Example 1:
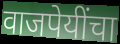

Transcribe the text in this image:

वाजपेयींचा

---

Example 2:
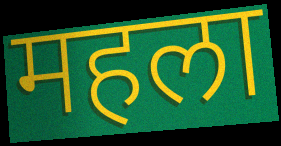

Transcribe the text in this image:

महला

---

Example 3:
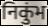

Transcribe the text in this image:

निकुंभ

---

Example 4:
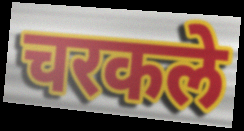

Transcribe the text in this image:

चरकले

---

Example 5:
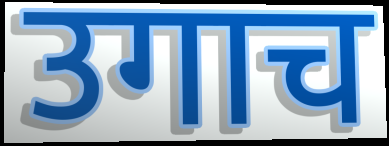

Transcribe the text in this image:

उगाच